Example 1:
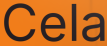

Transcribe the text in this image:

Cela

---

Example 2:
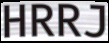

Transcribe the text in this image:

HRRJ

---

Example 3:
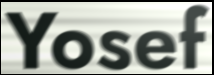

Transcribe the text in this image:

Yosef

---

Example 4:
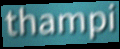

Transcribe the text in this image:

thampi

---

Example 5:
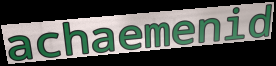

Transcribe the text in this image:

achaemenid